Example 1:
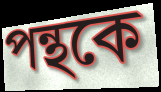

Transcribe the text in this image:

পন্থকে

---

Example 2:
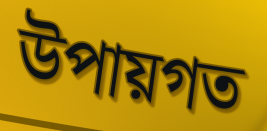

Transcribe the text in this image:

উপায়গত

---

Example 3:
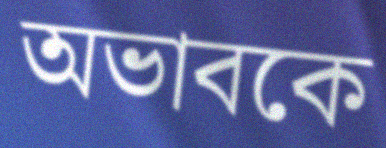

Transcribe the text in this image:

অভাবকে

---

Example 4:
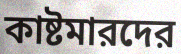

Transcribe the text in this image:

কাষ্টমারদের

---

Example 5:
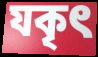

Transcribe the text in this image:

যকৃৎ